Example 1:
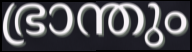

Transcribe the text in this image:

ഭ്രാന്തും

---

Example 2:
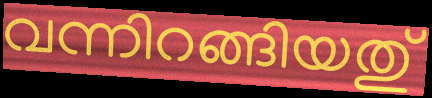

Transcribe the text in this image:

വന്നിറങ്ങിയതു്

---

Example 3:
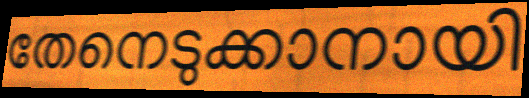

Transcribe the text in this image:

തേനെടുക്കാനായി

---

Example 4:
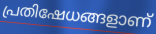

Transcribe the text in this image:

പ്രതിഷേധങ്ങളാണ്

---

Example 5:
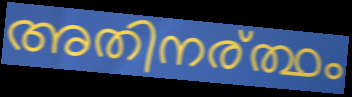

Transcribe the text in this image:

അതിനര്ത്ഥം